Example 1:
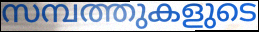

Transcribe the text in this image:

സമ്പത്തുകളുടെ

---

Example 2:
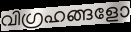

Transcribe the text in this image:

വിഗ്രഹങ്ങളോ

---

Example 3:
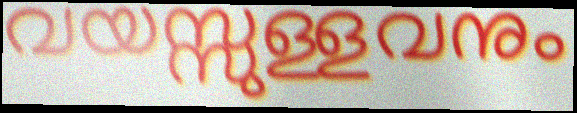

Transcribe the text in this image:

വയസ്സുള്ളവനും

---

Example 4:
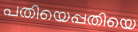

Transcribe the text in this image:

പതിയെപ്പതിയെ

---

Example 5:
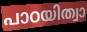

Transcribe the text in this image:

പാഠയിത്വാ